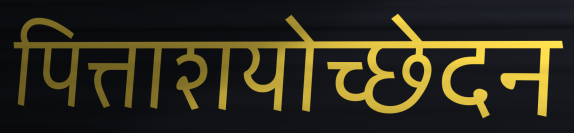
पित्ताशयोच्छेदन